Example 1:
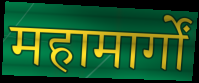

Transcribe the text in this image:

महामार्गों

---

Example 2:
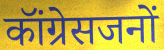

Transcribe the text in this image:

कॉंग्रेसजनों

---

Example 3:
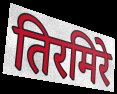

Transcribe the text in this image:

तिरमिरे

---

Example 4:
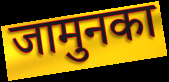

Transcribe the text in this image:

जामुनका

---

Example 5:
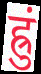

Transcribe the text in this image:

ह्रुं